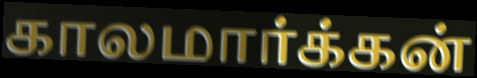
காலமார்க்கன்